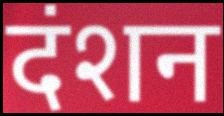
दंशन